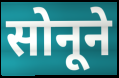
सोनूने